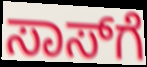
ಸಾಸ್‌ಗೆ